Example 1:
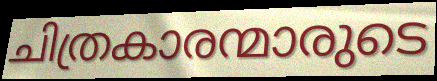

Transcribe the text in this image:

ചിത്രകാരന്മാരുടെ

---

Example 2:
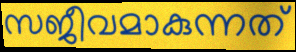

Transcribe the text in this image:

സജീവമാകുന്നത്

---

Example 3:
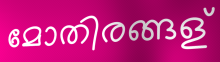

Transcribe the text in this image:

മോതിരങ്ങള്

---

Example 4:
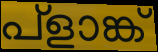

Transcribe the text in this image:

പ്ളാങ്ക്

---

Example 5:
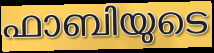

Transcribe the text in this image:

ഫാബിയുടെ